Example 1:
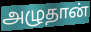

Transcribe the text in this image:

அழுதான்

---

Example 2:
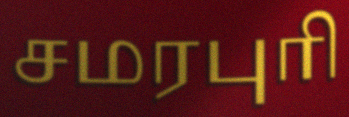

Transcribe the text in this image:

சமரபுரி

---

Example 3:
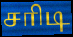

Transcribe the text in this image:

சரிடி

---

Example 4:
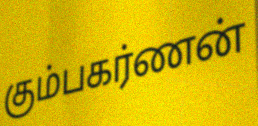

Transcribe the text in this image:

கும்பகர்ணன்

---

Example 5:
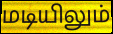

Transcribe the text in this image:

மடியிலும்